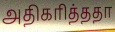
அதிகரித்ததா